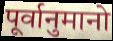
पूर्वानुमानो